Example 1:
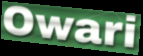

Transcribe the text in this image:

Owari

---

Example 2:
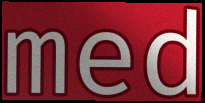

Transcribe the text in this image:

med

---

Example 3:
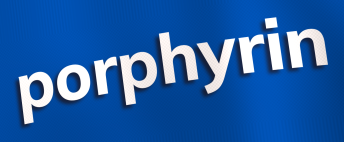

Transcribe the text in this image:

porphyrin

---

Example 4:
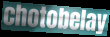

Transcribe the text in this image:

chotobelay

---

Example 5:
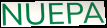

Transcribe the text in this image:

NUEPA